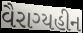
વૈરાગ્યહીન